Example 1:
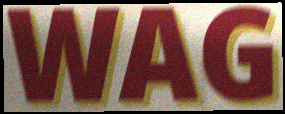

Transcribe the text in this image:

WAG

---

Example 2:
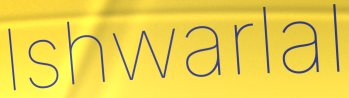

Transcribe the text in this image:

Ishwarlal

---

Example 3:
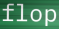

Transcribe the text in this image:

flop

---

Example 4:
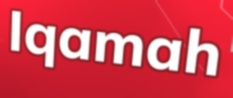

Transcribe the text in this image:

Iqamah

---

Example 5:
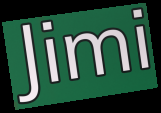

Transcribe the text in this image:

Jimi